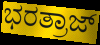
ಭರತ್ರಾಜ್